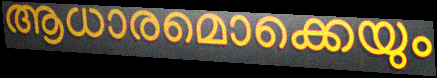
ആധാരമൊക്കെയും